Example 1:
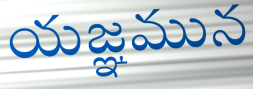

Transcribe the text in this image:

యజ్ఞమున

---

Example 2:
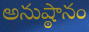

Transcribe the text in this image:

అనుష్ఠానం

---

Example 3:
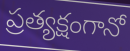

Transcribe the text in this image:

ప్రత్యక్షంగానో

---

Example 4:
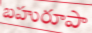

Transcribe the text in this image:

బహురూపా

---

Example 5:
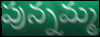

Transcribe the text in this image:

పున్నమ్మ